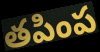
తపింప